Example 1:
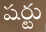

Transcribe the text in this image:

షర్టు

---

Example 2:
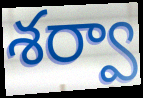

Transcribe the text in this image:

శర్వా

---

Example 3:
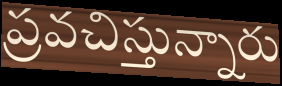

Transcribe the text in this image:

ప్రవచిస్తున్నారు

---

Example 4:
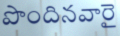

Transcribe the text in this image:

పొందినవారై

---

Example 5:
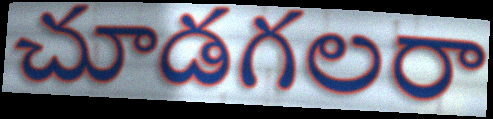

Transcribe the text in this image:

చూడగలరా